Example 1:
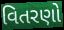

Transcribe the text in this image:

વિતરણો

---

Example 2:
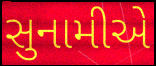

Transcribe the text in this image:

સુનામીએ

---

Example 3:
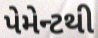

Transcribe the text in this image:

પેમેન્ટથી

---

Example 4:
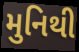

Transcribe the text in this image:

મુનિથી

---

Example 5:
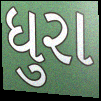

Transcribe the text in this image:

ધુરા